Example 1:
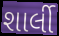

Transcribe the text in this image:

શાર્લી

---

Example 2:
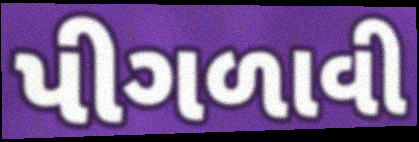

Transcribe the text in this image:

પીગળાવી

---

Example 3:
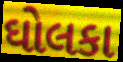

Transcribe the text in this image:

ઘોલકા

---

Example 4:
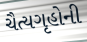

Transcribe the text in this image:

ચૈત્યગૃહોની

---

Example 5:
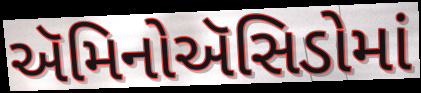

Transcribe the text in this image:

ઍમિનોઍસિડોમાં